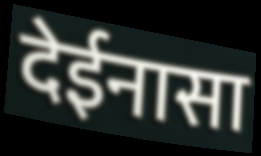
देईनासा